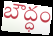
బౌద్ధం